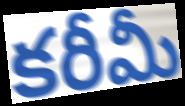
కరీమీ